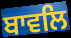
ਬਾਵਲਿ